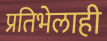
प्रतिभेलाही